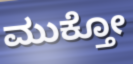
ಮುಕ್ತೋ